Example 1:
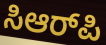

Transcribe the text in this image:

ಸಿಆರ್‌ಪಿ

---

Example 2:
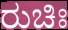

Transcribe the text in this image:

ರುಚಿಃ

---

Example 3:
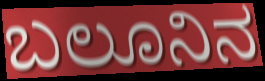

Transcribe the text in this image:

ಬಲೂನಿನ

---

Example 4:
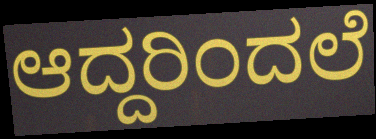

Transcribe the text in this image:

ಆದ್ದರಿಂದಲೆ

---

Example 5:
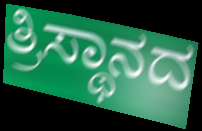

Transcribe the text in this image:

ತ್ರಿಸ್ಥಾನದ